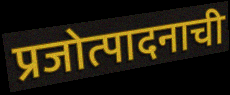
प्रजोत्पादनाची